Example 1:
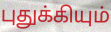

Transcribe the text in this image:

புதுக்கியும்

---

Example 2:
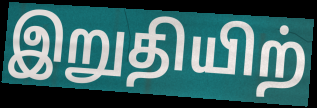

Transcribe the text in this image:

இறுதியிற்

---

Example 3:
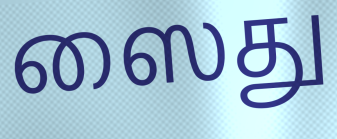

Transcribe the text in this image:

ஸைது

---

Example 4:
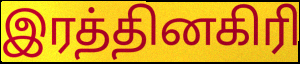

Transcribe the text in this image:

இரத்தினகிரி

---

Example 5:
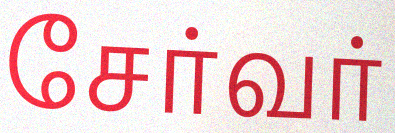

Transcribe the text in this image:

சேர்வர்